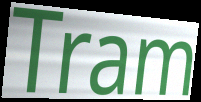
Tram